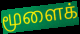
மூளைக்